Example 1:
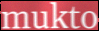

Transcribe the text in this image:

mukto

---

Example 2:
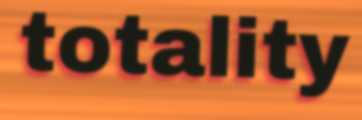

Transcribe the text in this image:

totality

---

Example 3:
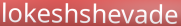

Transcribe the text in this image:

lokeshshevade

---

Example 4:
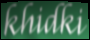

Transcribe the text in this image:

khidki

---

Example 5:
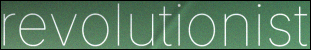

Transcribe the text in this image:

revolutionist